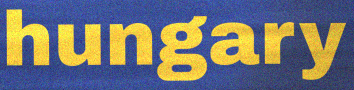
hungary